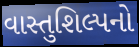
વાસ્તુશિલ્પનો